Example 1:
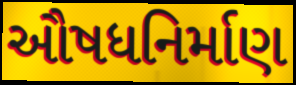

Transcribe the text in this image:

ઔષધનિર્માણ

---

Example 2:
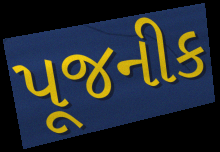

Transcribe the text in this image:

પૂજનીક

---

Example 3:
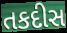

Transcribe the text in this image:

તકદીસ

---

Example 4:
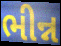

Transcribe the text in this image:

ભીન્ન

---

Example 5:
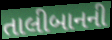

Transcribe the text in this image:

તાલીબાનની